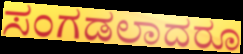
ಸಂಗಡಲಾದರೂ